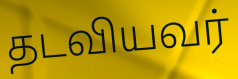
தடவியவர்